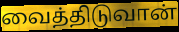
வைத்திடுவான்